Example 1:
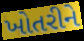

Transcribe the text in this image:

ખોતરીને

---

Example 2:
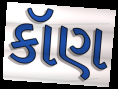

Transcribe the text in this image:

કૉણ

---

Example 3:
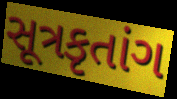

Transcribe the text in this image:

સૂત્રકૃતાંગ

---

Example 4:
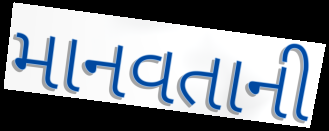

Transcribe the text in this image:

માનવતાની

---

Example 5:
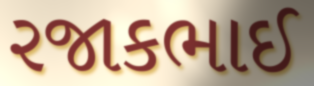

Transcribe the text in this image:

રજાકભાઈ